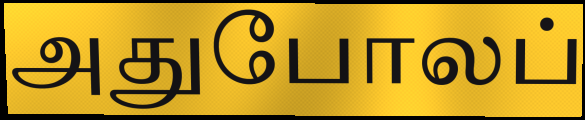
அதுபோலப்